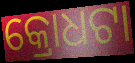
କ୍ରୋଧଟା